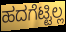
ಹದಗೆಟ್ಟಿಲ್ಲ